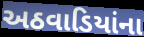
અઠવાડિયાંના